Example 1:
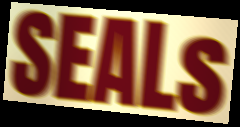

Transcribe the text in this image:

SEALs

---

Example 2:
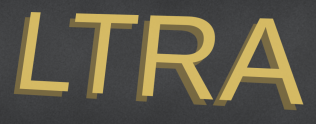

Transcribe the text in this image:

LTRA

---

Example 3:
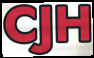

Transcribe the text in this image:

CJH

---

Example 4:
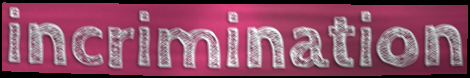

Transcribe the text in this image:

incrimination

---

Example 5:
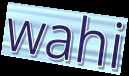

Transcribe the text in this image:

wahi